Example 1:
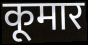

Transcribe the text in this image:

कूमार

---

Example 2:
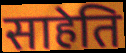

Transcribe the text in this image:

साहेति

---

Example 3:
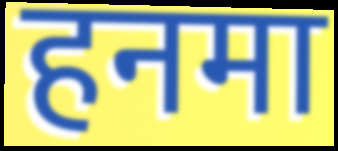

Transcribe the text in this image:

हनमा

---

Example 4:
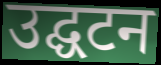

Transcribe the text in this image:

उद्घटन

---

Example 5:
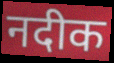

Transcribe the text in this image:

नदीक